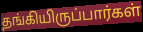
தங்கியிருப்பார்கள்